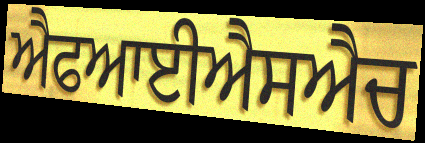
ਐਫਆਈਐਸਐਚ